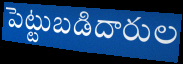
పెట్టుబడిదారుల